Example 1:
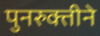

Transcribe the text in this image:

पुनरुक्तीने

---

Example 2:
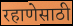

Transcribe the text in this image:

रहाणेसाठी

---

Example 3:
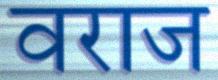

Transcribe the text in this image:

वराज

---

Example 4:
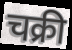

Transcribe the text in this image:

चक्री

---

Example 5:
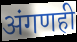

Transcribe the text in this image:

अंगणही